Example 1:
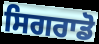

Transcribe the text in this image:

ਸਿਗਰਾਡੋ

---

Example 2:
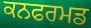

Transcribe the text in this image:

ਕਨਫਰਮਡ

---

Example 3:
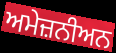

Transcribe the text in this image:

ਅਮੇਜ਼ਨੀਅਨ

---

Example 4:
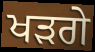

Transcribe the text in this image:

ਖੜਗੇ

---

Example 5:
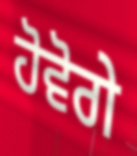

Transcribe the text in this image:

ਹੋਵੋਗੇ